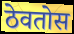
ठेवतोस